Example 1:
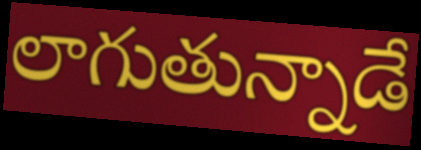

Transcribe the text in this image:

లాగుతున్నాడే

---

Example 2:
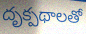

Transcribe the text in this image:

దృక్పథాలతో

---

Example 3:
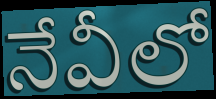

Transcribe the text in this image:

నేవీలో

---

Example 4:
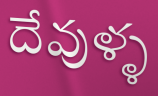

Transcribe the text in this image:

దేవుళ్ళ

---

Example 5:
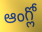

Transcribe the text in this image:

ఆంగ్లో